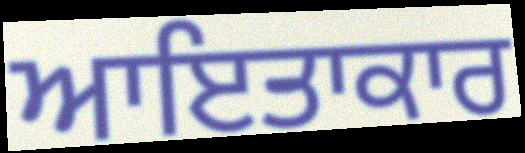
ਆਇਤਾਕਾਰ